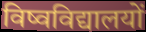
विष्वविद्यालयों